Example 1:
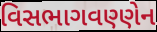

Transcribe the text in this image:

વિસભાગવણ્ણેન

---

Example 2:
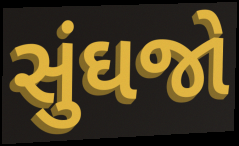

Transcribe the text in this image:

સુંઘજો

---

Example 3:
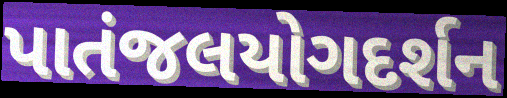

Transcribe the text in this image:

પાતંજલયોગદર્શન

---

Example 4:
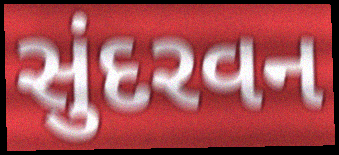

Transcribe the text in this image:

સુંદરવન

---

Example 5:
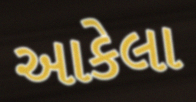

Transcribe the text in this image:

આકેલા